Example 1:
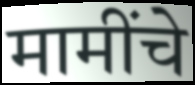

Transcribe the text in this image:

मामींचे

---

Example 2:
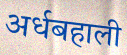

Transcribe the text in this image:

अर्धबहाली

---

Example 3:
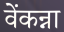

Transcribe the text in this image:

वेंकन्ना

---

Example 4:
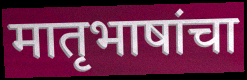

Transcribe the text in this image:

मातृभाषांचा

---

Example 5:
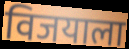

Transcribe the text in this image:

विजयाला